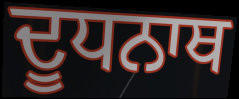
ਦੂਧਨਾਥ